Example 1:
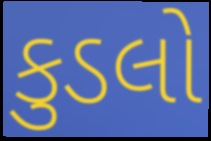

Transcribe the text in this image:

કુડલો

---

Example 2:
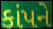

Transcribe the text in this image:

કાંપને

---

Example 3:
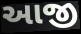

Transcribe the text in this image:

આજી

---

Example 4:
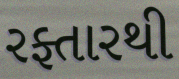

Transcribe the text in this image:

રફ્તારથી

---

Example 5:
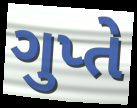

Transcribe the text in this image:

ગુપ્તે